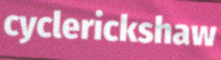
cyclerickshaw